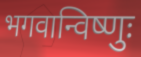
भगवान्विष्णुः